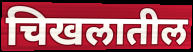
चिखलातील